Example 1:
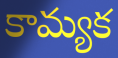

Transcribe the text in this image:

కామ్యక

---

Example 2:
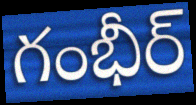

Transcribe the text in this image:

గంభీర్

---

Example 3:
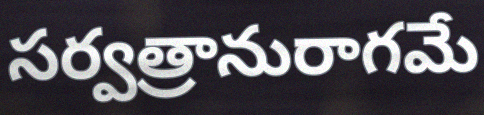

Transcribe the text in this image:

సర్వత్రానురాగమే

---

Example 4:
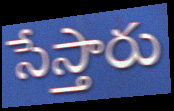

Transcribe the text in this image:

సేస్తారు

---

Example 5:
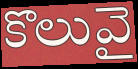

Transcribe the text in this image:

కొలువై